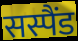
सस्पैंड